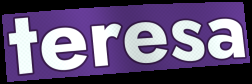
teresa